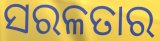
ସରଳତାର